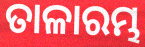
ତାଳାରମ୍ଭ